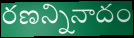
రణన్నినాదం